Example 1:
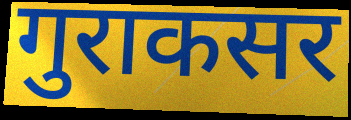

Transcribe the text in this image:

गुराकसर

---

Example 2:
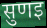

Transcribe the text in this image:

सुणइ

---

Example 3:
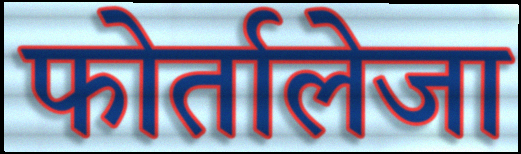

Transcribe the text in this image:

फोर्तालेजा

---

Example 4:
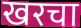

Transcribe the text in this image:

खरचा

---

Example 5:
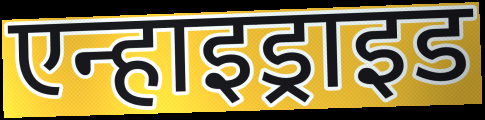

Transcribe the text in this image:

एन्हाइड्राइड